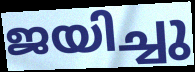
ജയിച്ചു